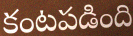
కంటపడింది